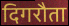
दिगरौता